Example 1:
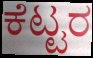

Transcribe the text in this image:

ಕೆಟ್ಟರ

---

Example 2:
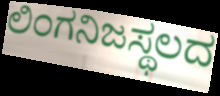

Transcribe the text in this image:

ಲಿಂಗನಿಜಸ್ಥಲದ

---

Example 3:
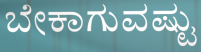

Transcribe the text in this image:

ಬೇಕಾಗುವಷ್ಟು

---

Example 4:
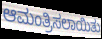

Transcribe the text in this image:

ಆಮಂತ್ರಿಸಲಾಯಿತು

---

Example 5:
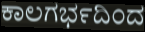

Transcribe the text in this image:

ಕಾಲಗರ್ಭದಿಂದ